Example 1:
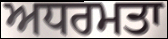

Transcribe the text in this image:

ਅਧਰਮਤਾ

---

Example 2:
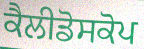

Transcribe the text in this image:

ਕੈਲੀਡੋਸਕੋਪ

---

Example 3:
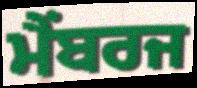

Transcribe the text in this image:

ਮੈਂਬਰਜ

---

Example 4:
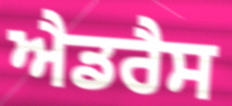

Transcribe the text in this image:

ਐਡਰੈਸ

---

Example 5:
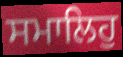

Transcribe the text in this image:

ਸਮਾਲਿਹੁ